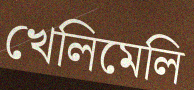
খেলিমেলি